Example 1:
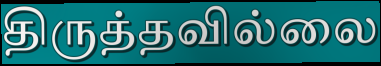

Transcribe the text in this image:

திருத்தவில்லை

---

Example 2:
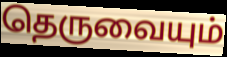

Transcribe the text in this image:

தெருவையும்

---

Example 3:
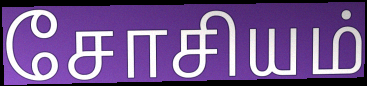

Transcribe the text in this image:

சோசியம்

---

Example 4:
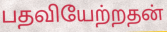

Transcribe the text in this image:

பதவியேற்றதன்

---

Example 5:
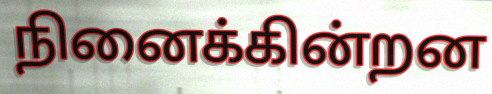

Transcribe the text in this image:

நினைக்கின்றன